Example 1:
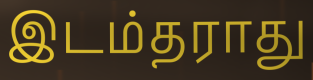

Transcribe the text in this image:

இடம்தராது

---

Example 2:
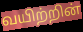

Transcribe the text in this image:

வயிற்றின்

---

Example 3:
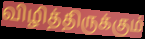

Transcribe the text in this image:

விழித்திருக்கும்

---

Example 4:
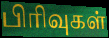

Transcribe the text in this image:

பிரிவுகள்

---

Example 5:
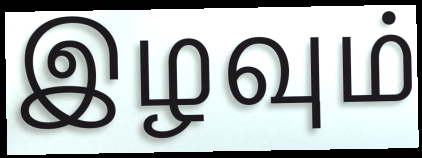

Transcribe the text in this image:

இழவும்